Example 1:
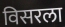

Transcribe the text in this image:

विसरला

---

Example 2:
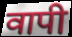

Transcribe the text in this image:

वापी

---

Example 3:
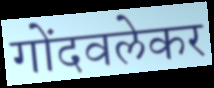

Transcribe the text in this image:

गोंदवलेकर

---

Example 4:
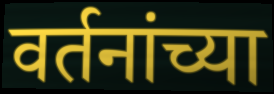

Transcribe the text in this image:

वर्तनांच्या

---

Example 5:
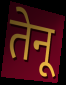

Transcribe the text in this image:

तेनू